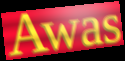
Awas